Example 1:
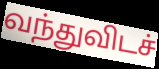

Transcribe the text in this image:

வந்துவிடச்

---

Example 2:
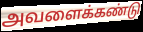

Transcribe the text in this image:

அவளைக்கண்டு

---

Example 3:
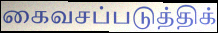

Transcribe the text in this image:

கைவசப்படுத்திக்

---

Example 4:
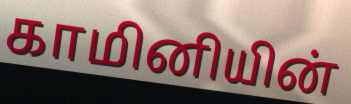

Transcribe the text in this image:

காமினியின்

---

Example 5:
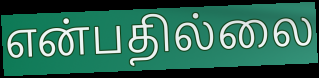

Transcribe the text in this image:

என்பதில்லை